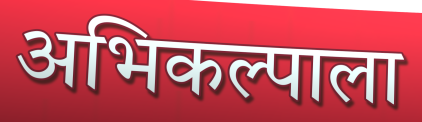
अभिकल्पाला